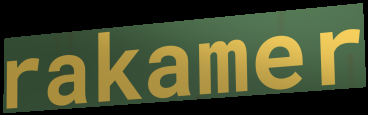
rakamer